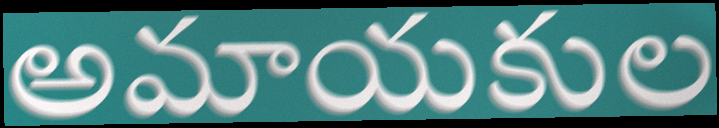
అమాయకుల